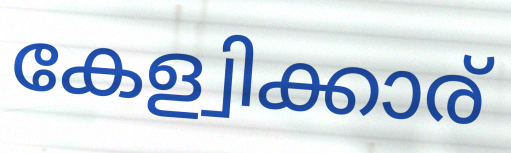
കേള്വിക്കാര്